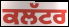
ਕਲੱਟਰ